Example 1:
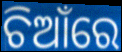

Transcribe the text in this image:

ଚିଆଁରେ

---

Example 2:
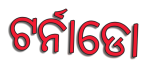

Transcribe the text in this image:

ଟର୍ନାଡୋ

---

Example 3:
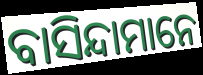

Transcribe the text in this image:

ବାସିନ୍ଦାମାନେ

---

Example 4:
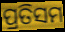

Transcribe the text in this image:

ପ୍ରତିସମ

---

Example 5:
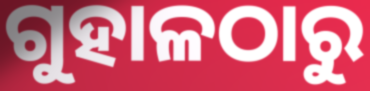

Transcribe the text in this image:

ଗୁହାଳଠାରୁ